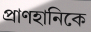
প্রাণহানিকে